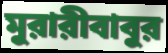
মুরারীবাবুর